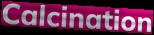
Calcination